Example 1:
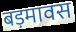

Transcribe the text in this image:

बड़मावस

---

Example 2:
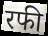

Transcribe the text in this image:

रफी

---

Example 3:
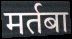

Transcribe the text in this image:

मर्तबा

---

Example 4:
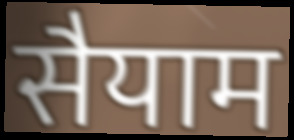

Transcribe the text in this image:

सैयाम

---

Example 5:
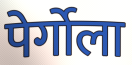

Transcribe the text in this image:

पेर्गोला